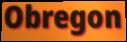
Obregon